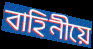
বাহিনীয়ে